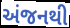
અંજનથી